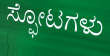
ಸ್ಫೋಟಗಳು